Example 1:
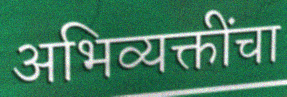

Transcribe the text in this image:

अभिव्यक्तींचा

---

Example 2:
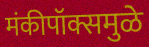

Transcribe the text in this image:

मंकीपॉक्समुळे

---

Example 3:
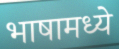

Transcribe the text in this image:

भाषामध्ये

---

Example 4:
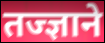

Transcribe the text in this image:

तज्ज्ञाने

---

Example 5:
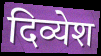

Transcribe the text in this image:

दिव्येश